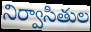
నిర్వాసితుల